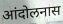
आंदोलनास